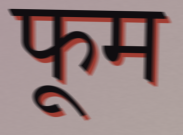
फूम